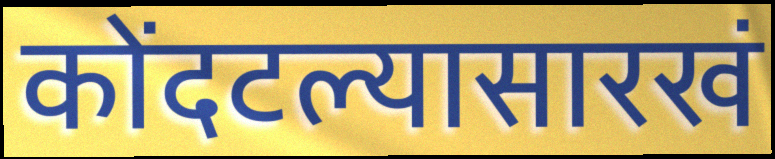
कोंदटल्यासारखं